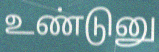
உண்டுனு